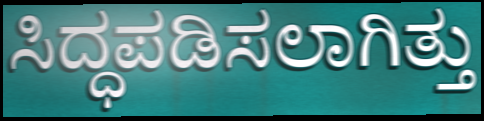
ಸಿದ್ಧಪಡಿಸಲಾಗಿತ್ತು